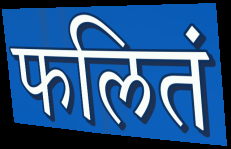
फलितं